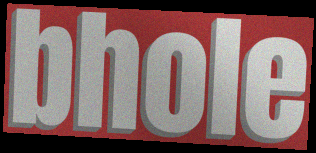
bhole